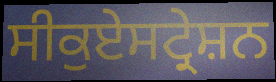
ਸੀਕੁਏਸਟ੍ਰੇਸ਼ਨ